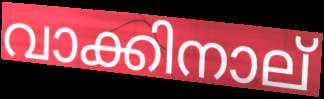
വാക്കിനാല്